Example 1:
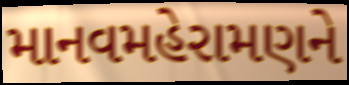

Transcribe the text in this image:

માનવમહેરામણને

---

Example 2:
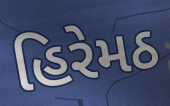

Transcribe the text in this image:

હિરેમઠ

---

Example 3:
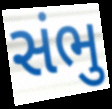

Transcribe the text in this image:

સંભુ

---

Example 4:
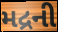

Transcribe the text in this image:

મદ્રની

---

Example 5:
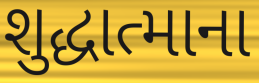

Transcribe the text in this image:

શુદ્ધાત્માના